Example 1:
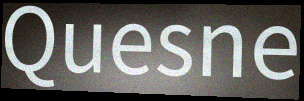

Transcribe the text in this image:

Quesne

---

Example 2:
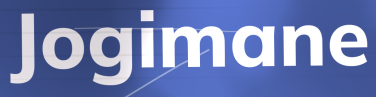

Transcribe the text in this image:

Jogimane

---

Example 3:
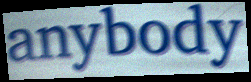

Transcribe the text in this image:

anybody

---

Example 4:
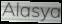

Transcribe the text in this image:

Alasya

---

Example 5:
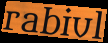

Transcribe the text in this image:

rabiul